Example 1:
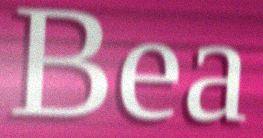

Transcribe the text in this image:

Bea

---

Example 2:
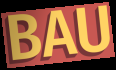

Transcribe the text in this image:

BAU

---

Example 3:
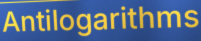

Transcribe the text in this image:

Antilogarithms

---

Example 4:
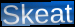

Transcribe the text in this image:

Skeat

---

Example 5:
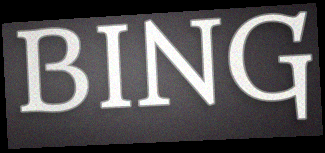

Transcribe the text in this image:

BING